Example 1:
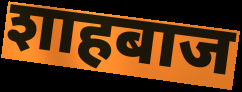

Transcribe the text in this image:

शाहबाज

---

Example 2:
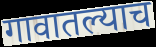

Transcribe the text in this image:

गावातल्याच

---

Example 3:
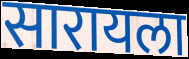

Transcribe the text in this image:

सारायला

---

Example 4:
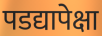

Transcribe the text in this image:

पडद्यापेक्षा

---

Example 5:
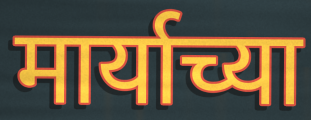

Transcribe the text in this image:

मार्याच्या